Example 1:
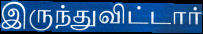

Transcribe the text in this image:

இருந்துவிட்டார்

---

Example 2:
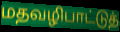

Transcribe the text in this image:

மதவழிபாட்டுத்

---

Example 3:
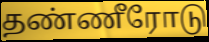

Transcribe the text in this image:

தண்ணீரோடு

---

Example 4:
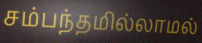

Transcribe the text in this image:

சம்பந்தமில்லாமல்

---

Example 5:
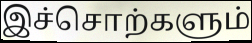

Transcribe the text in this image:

இச்சொற்களும்